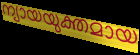
ന്യായയുക്തമായ